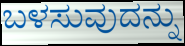
ಬಳಸುವುದನ್ನು